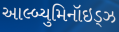
આલ્બ્યુમિનૉઇડ્ઝ